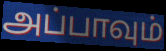
அப்பாவும்